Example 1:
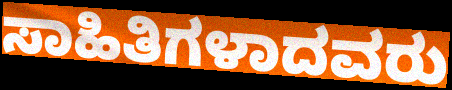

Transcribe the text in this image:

ಸಾಹಿತಿಗಳಾದವರು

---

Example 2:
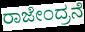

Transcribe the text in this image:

ರಾಜೇಂದ್ರನೆ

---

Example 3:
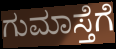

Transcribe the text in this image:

ಗುಮಾಸ್ತೆಗೆ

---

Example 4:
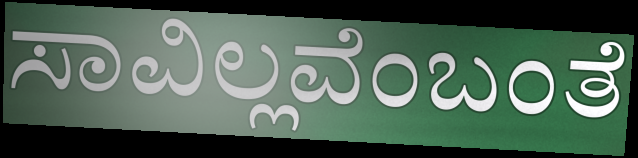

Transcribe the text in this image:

ಸಾವಿಲ್ಲವೆಂಬಂತೆ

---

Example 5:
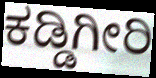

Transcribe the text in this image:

ಕಡ್ಡಿಗೀರಿ